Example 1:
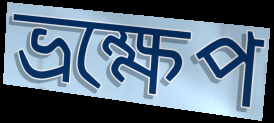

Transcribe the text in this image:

ভ্রক্ষেপ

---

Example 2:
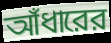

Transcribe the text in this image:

আঁধারের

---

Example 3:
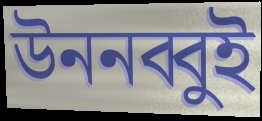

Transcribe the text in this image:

উননব্বুই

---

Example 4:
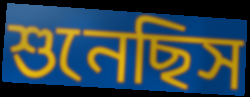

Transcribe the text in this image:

শুনেছিস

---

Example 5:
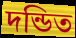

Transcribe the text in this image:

দন্ডিত